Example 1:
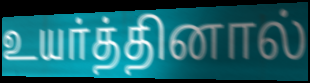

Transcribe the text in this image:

உயர்த்தினால்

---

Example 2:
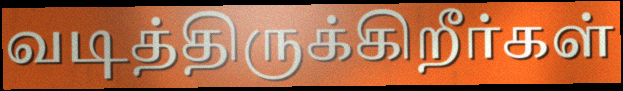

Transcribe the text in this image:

வடித்திருக்கிறீர்கள்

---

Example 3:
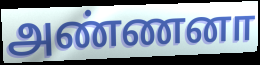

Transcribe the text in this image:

அண்ணனா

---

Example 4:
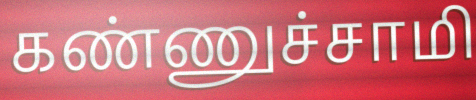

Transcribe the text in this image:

கண்ணுச்சாமி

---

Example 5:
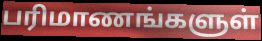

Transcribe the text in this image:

பரிமாணங்களுள்